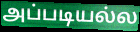
அப்படியல்ல